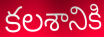
కలశానికి